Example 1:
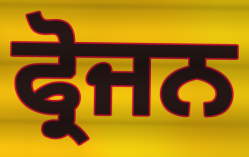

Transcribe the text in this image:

ਫ੍ਰੋਜਨ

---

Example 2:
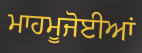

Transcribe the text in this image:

ਮਾਹਮੂਜੋਈਆਂ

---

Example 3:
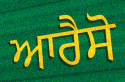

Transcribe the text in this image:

ਆਰੈਸੋ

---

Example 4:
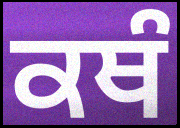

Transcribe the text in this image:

ਕਥੰ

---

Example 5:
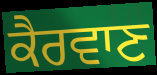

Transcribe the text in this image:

ਕੈਰਵਾਣ